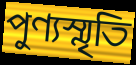
পুণ্যস্মৃতি